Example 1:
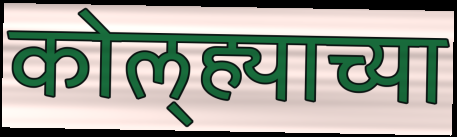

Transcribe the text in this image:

कोल्ह्याच्या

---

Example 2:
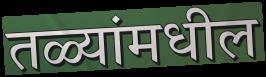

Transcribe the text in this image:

तळ्यांमधील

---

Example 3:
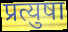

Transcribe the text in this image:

प्रत्युषा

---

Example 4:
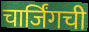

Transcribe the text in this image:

चार्जिंगची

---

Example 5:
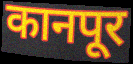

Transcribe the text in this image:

कानपूर